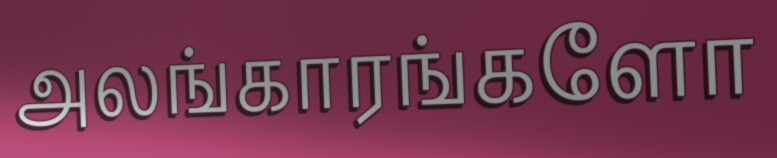
அலங்காரங்களோ